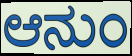
ಆನುಂ